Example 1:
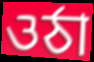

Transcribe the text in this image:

ওঠা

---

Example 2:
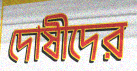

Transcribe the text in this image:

দোষীদের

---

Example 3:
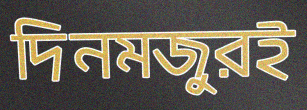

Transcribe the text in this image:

দিনমজুরই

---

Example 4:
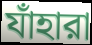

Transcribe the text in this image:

যাঁহারা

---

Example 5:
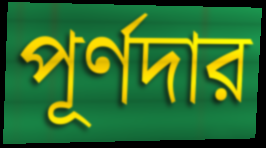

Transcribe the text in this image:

পূর্ণদার